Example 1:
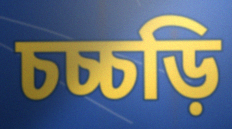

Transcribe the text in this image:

চচ্চড়ি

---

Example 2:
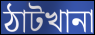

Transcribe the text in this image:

ঠাটখানা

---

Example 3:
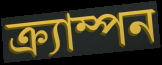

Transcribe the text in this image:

ক্র্যাম্পন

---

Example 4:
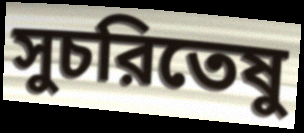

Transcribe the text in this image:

সুচরিতেষু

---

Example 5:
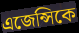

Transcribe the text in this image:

এজেন্সিকে